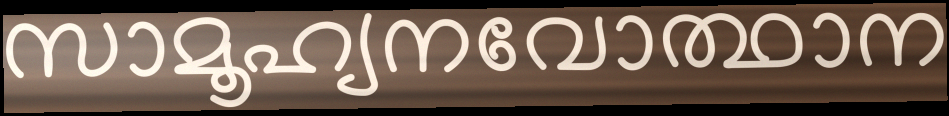
സാമൂഹ്യനവോത്ഥാന